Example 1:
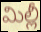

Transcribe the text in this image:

మిల్లీ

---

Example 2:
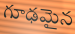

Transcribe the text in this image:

గూఢమైన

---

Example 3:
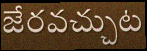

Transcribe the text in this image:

జేరవచ్చుట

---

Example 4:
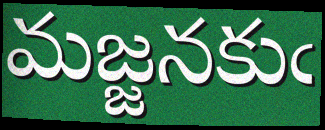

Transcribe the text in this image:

మజ్జనకుఁ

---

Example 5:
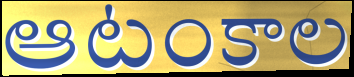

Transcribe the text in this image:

ఆటంకాల